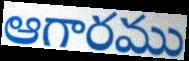
ఆగారము